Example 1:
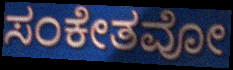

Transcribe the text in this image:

ಸಂಕೇತವೋ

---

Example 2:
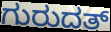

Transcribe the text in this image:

ಗುರುದತ್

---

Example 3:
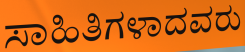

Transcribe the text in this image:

ಸಾಹಿತಿಗಳಾದವರು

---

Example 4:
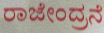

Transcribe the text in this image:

ರಾಜೇಂದ್ರನೆ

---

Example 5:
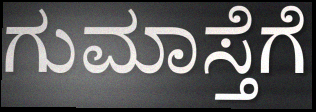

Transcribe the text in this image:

ಗುಮಾಸ್ತೆಗೆ